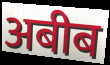
अबीब